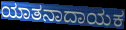
ಯಾತನಾದಾಯಕ